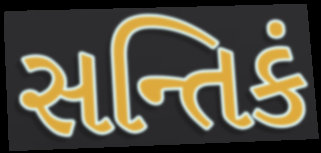
સન્તિકં